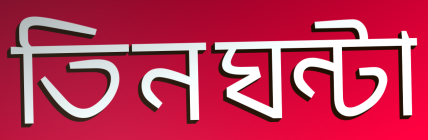
তিনঘন্টা